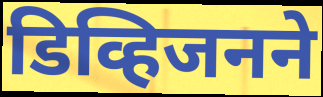
डिव्हिजनने